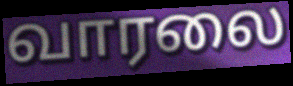
வாரலை